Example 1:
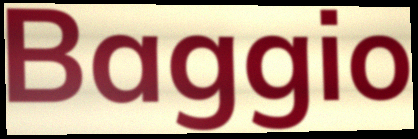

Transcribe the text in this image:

Baggio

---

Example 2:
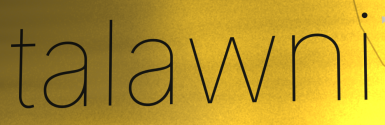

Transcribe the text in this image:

talawni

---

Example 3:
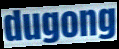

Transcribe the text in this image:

dugong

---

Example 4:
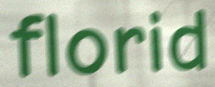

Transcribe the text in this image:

florid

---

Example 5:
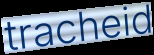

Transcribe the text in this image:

tracheid